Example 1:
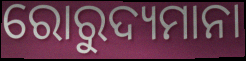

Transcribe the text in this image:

ରୋରୁଦ୍ୟମାନା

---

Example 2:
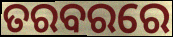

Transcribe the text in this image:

ତରବରରେ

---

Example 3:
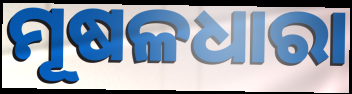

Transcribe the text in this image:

ମୂଷଳଧାରା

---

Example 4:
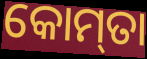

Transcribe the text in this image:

କୋମ୍‌ତା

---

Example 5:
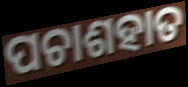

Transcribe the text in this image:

ପଚାଶହାତ